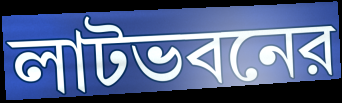
লাটভবনের